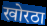
खोरठा